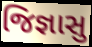
જિજ્ઞાસુ